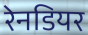
रेनडियर